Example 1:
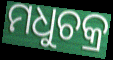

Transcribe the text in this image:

ମଧୁଚକ୍ର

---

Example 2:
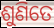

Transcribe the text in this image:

ଶୁଣିତେ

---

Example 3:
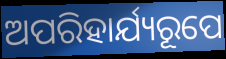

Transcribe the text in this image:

ଅପରିହାର୍ଯ୍ୟରୂପେ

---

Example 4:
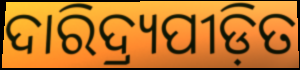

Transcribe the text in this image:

ଦାରିଦ୍ର୍ୟପୀଡ଼ିତ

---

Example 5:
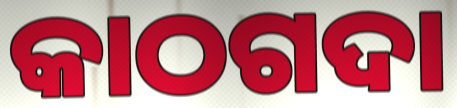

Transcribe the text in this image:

କାଠଗଦା